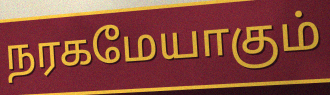
நரகமேயாகும்